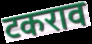
टकराव